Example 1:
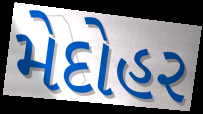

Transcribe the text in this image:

મેદોહર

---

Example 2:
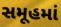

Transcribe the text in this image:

સમૂહમાં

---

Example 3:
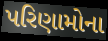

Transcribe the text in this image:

પરિણામોના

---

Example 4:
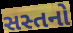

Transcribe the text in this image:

સસ્તનો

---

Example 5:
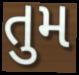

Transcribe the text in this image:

તુમ